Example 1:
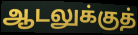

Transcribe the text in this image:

ஆடலுக்குத்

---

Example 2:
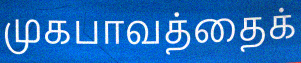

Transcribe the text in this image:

முகபாவத்தைக்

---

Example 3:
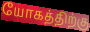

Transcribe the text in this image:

யோகத்திற்கு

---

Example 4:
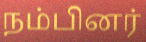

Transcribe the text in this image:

நம்பினர்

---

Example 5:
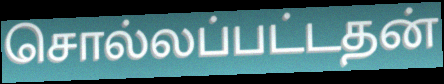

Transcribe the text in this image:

சொல்லப்பட்டதன்